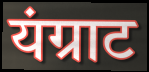
यंग्राट